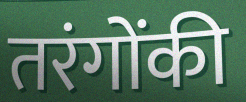
तरंगोंकी